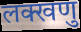
लक्खणु